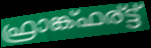
ഫ്രാങ്ക്ഫര്ട്ട്